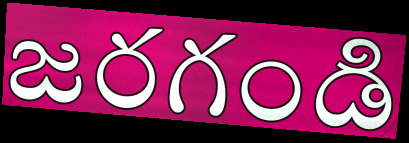
జరగండి